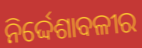
ନିର୍ଦ୍ଦେଶାବଳୀର